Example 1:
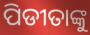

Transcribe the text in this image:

ପିଡୀତାଙ୍କୁ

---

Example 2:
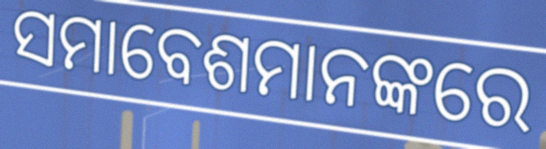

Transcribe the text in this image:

ସମାବେଶମାନଙ୍କରେ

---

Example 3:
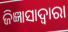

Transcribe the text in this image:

ଜିଜ୍ଞାସାଦ୍ୱାରା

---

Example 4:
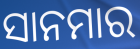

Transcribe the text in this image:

ସାନମାର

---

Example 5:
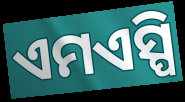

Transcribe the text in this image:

ଏମଏସ୍ପି